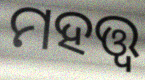
ମହତ୍ତ୍ବ